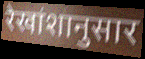
रेखांशानुसार